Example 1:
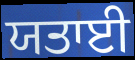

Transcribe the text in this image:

ਯਤਾਈ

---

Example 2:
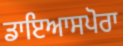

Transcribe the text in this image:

ਡਾਇਆਸਪੋਰਾ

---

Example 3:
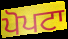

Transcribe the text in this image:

ਪੋਪਟਾ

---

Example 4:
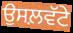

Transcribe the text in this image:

ਉਸਲ਼ਵੱਟੇ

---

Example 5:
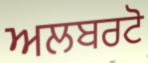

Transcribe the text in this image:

ਅਲਬਰਟੋ